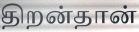
திறன்தான்